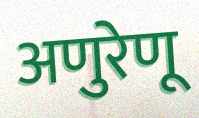
अणुरेणू